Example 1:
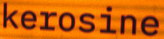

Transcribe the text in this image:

kerosine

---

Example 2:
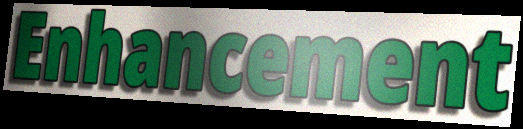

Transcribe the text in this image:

Enhancement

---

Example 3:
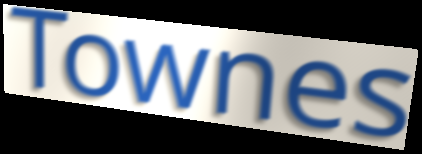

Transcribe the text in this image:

Townes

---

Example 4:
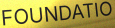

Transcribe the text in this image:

FOUNDATIO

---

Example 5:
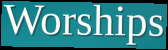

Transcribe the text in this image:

Worships